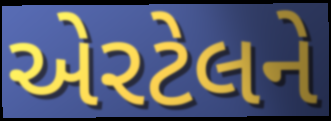
એરટેલને